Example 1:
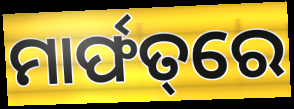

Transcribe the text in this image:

ମାର୍ଫତ୍‌ରେ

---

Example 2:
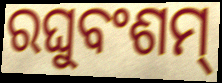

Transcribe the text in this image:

ରଘୁବଂଶମ୍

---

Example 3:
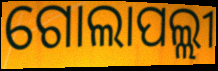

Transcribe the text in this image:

ଗୋଲାପଲ୍ଲୀ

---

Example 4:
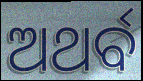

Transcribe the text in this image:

ଅଥର୍ବ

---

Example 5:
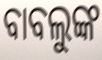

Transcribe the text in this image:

ବାବଲୁଙ୍କ